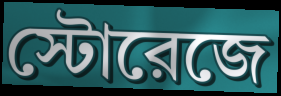
স্টোরেজে